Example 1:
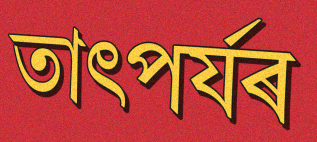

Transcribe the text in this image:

তাৎপৰ্যৰ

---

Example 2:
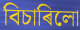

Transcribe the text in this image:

বিচাৰিলো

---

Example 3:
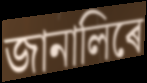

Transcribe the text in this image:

জানালিৰে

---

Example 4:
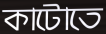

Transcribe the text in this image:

কাটোতে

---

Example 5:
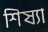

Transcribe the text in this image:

শিষ্যা